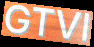
GTVI